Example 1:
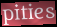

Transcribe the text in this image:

pities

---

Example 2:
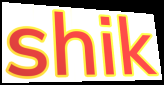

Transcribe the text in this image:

shik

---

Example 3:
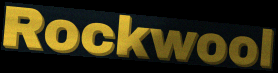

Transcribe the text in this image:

Rockwool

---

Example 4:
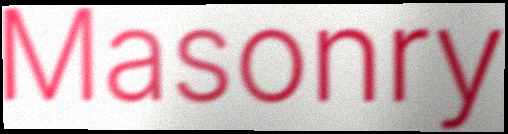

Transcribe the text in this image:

Masonry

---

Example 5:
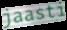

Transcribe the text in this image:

jaasti